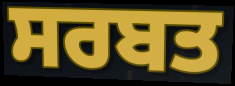
ਸਰਬਤ